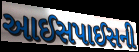
આઈસપાઈસની